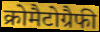
क्रोमैटोग्रैफी